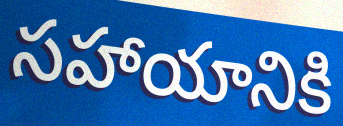
సహాయానికి